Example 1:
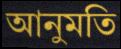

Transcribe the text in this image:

আনুমতি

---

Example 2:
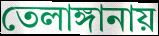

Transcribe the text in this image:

তেলাঙ্গানায়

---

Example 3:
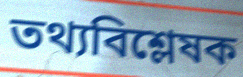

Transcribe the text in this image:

তথ্যবিশ্লেষক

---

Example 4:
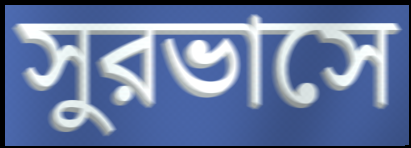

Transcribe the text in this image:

সুরভাসে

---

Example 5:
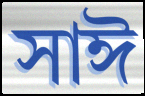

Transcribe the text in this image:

সাঈ